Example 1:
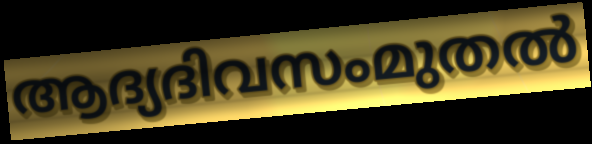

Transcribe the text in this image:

ആദ്യദിവസംമുതൽ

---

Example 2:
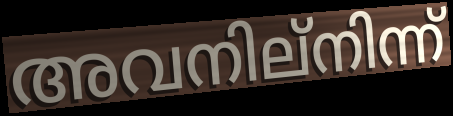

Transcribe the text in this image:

അവനില്നിന്ന്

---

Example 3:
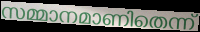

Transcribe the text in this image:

സമ്മാനമാണിതെന്ന്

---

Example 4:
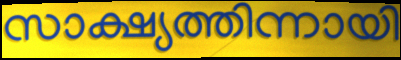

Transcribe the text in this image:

സാക്ഷ്യത്തിന്നായി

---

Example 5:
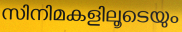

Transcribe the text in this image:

സിനിമകളിലൂടെയും